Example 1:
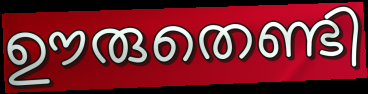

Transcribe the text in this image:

ഊരുതെണ്ടി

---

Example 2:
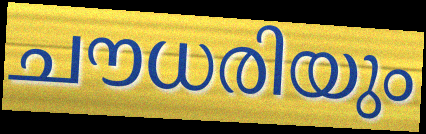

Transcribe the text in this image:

ചൗധരിയും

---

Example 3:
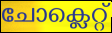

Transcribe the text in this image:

ചോക്ലെറ്റ്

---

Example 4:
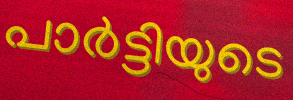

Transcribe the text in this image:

പാർട്ടിയുടെ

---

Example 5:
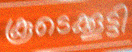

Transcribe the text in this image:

കൂടെക്കൂട്ടി